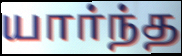
யார்ந்த